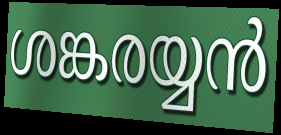
ശങ്കരയ്യൻ